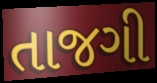
તાજગી